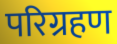
परिग्रहण